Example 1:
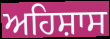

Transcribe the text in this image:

ਅਹਿਸ਼ਾਸ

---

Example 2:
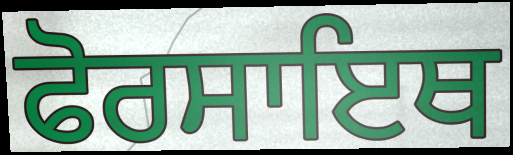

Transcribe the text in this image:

ਫੋਰਸਾਇਥ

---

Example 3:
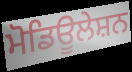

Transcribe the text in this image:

ਮੋਡਿਊਲੇਸ਼ਨ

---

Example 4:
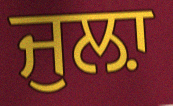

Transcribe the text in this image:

ਜੁਲ਼ਾ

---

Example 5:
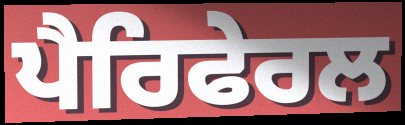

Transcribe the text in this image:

ਪੈਰਿਫੇਰਲ